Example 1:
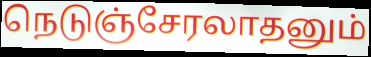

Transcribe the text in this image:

நெடுஞ்சேரலாதனும்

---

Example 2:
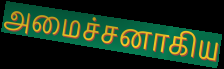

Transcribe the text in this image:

அமைச்சனாகிய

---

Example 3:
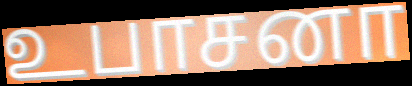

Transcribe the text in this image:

உபாசனா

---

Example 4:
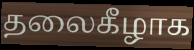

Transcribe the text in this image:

தலைகீழாக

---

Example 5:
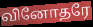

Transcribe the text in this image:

வினோதரே